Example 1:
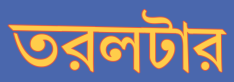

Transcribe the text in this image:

তরলটার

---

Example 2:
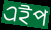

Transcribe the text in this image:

এইপ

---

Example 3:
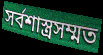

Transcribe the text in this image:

সর্বশাস্ত্রসম্মত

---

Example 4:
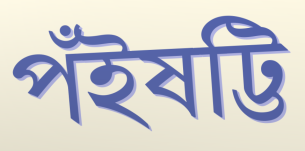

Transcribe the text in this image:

পঁইষট্টি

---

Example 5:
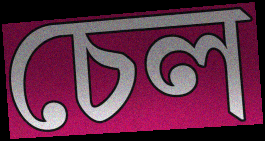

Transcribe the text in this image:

চেল